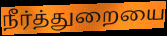
நீர்த்துறையை